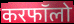
करफॉलो